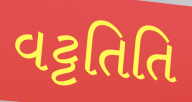
વટ્ટતિતિ